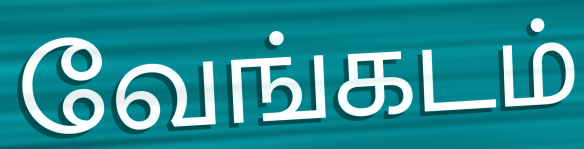
வேங்கடம்